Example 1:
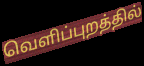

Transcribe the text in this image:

வெளிப்புறத்தில்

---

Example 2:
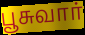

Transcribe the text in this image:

பூசுவார்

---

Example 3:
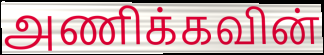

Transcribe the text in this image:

அணிக்கவின்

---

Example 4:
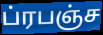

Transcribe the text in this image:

ப்ரபஞ்ச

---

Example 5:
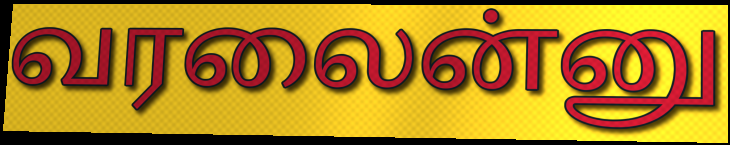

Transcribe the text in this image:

வரலைன்னு